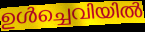
ഉൾച്ചെവിയിൽ